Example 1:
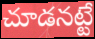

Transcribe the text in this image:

చూడనట్టే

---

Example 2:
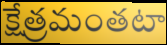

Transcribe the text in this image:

క్షేత్రమంతటా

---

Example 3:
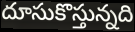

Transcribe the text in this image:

దూసుకొస్తున్నది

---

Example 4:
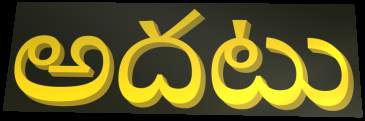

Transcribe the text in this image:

అదటు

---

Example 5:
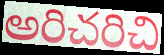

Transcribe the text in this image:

అరిచరిచి